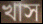
খাস